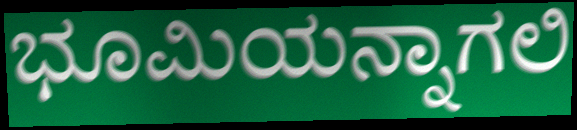
ಭೂಮಿಯನ್ನಾಗಲಿ